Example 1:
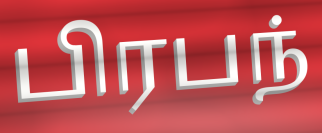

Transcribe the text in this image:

பிரபந்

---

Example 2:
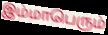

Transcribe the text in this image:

இம்மாபெரும்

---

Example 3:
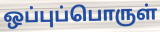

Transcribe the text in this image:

ஒப்புப்பொருள்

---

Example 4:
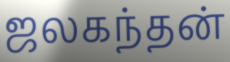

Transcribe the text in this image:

ஜலகந்தன்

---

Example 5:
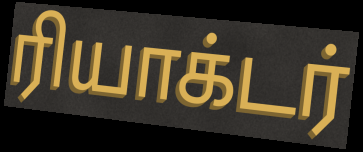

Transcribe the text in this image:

ரியாக்டர்